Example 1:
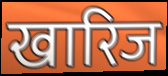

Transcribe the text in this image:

खारिज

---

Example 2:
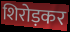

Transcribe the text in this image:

शिरोड़कर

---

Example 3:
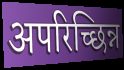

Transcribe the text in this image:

अपरिच्छिन्न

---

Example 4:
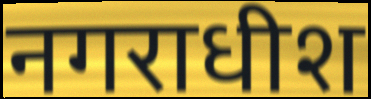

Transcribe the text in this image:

नगराधीश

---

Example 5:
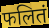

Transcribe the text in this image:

फलितं